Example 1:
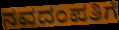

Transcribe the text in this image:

ನವದಂಪತಿಗೆ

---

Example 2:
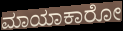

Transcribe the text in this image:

ಮಾಯಾಕಾರೋ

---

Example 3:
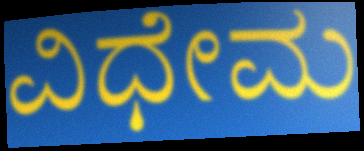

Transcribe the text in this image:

ವಿಧೇಮ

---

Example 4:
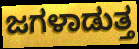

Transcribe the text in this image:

ಜಗಳಾಡುತ್ತ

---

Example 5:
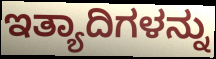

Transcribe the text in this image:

ಇತ್ಯಾದಿಗಳನ್ನು